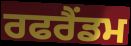
ਰਫਰੈਂਡਮ